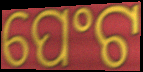
ପେଂଟ